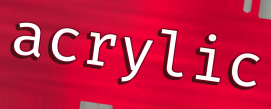
acrylic